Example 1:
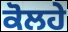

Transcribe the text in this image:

ਕੋਲਹੇ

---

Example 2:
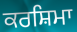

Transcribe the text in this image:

ਕਰਸ਼ਿਮਾ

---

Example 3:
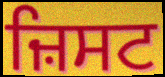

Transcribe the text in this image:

ਜ਼ਿਸਟ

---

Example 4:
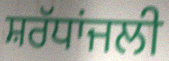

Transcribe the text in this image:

ਸ਼ਰੱਧਾਂਜਲੀ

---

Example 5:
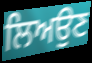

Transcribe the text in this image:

ਲਿਅਉਣ